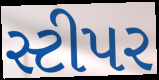
સ્ટીપર